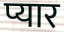
प्यार